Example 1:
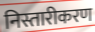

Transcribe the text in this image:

निस्तारीकरण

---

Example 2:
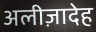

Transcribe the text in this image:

अलीज़ादेह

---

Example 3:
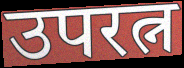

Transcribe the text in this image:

उपरत्न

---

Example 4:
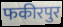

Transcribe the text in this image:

फकीरपुर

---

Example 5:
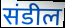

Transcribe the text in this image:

संडील